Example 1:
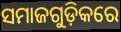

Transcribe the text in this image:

ସମାଜଗୁଡ଼ିକରେ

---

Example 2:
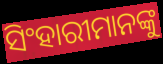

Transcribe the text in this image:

ସିଂହାରୀମାନଙ୍କୁ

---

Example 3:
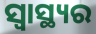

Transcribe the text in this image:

ସ୍ବାସ୍ଥ୍ୟର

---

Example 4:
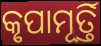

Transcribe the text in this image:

କୃପାମୂର୍ତ୍ତି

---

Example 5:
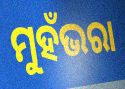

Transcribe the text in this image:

ମୁହଁଭରା